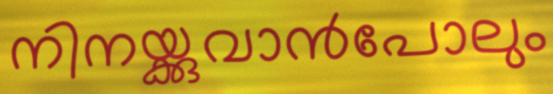
നിനയ്ക്കുവാൻപോലും